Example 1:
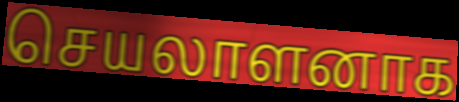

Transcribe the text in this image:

செயலாளனாக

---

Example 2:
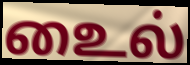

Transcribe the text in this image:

உைல்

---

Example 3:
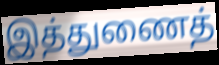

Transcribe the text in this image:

இத்துணைத்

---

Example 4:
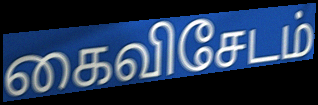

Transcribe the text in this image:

கைவிசேடம்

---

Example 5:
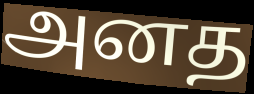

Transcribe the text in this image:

அனத